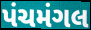
પંચમંગલ